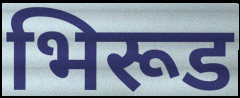
भिरूड